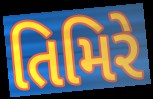
તિમિરે